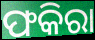
ଫକିରା